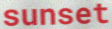
sunset